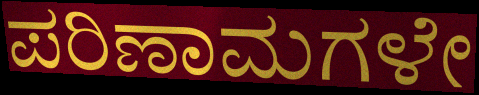
ಪರಿಣಾಮಗಳೇ